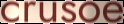
crusoe